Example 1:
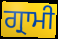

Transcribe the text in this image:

ਗ੍ਰਾਮੀ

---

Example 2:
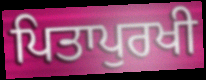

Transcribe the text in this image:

ਪਿਤਾਪੁਰਖੀ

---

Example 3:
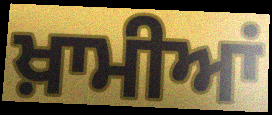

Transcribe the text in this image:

ਖ਼ਾਮੀਆਂ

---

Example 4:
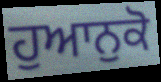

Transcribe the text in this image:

ਹੁਆਨੁਕੋ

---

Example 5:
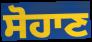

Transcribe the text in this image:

ਸੋਹਾਣ